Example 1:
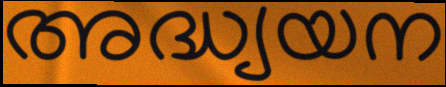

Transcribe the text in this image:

അദ്ധ്യയന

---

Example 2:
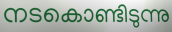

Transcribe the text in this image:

നടകൊണ്ടിടുന്നു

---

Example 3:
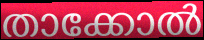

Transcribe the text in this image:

താക്കോൽ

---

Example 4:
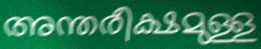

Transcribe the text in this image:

അന്തരീക്ഷമുള്ള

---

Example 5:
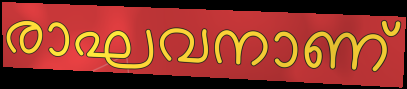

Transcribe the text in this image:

രാഘവനാണ്